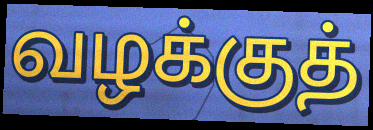
வழக்குத்